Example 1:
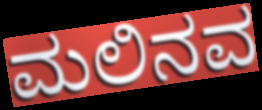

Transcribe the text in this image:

ಮಲಿನವ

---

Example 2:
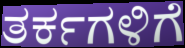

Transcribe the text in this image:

ತರ್ಕಗಳಿಗೆ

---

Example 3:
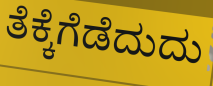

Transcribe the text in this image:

ತೆಕ್ಕೆಗೆಡೆದುದು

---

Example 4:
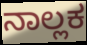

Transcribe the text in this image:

ನಾಲ್ಲಕ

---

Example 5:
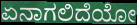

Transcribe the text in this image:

ಏನಾಗಲಿದೆಯೋ